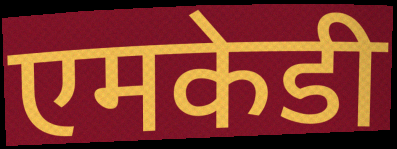
एमकेडी